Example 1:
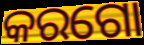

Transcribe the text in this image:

କରଗୋ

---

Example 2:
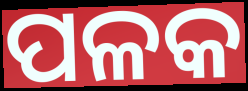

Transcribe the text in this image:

ପଳକ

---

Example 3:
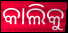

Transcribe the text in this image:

କାଲିକୁ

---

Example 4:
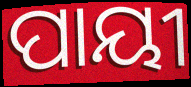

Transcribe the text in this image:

ପାୟୀ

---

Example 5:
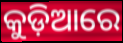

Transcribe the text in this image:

କୁଡ଼ିଆରେ